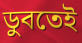
ডুবতেই